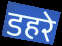
डहरे